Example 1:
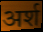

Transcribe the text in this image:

अर्श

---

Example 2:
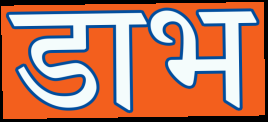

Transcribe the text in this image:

डाभ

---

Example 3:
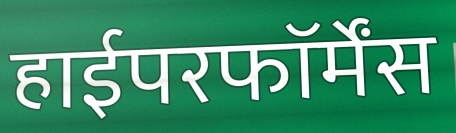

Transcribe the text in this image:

हाईपरफॉर्मेंस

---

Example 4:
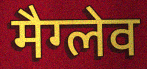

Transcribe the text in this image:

मैग्लेव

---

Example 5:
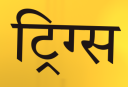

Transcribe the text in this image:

ट्रिग्स